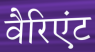
वैरिएंट